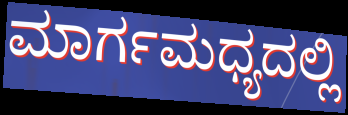
ಮಾರ್ಗಮಧ್ಯದಲ್ಲಿ